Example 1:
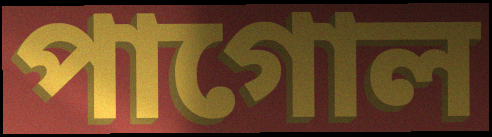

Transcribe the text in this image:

পাগোল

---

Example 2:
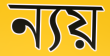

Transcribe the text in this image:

ন্যয়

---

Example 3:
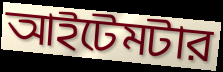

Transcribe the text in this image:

আইটেমটার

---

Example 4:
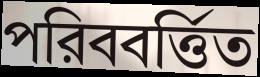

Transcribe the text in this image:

পরিববর্ত্তিত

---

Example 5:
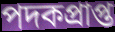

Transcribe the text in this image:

পদকপ্রাপ্ত